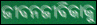
ଜୀବନଜୀବିକାକୁ